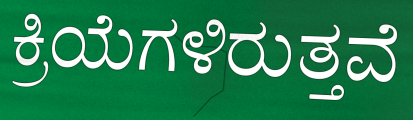
ಕ್ರಿಯೆಗಳಿರುತ್ತವೆ